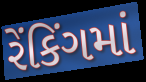
રેંકિંગમાં